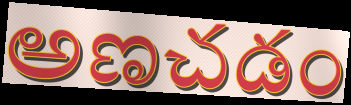
అణచడం